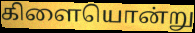
கிளையொன்று